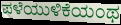
ಪಳೆಯುಳಿಕೆಯಂಥ